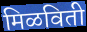
मिळविती